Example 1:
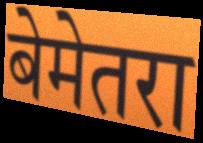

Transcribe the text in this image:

बेमेतरा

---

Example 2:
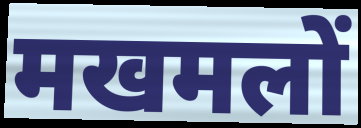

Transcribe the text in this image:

मखमलों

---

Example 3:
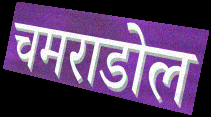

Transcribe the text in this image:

चमराडोल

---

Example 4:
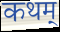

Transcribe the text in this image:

कथम्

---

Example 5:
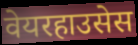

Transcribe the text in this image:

वेयरहाउसेस